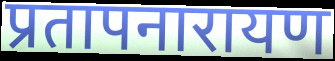
प्रतापनारायण